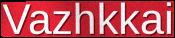
Vazhkkai